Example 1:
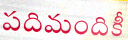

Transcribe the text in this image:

పదిమందికీ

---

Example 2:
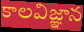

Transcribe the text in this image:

కాలవిజ్ఞాన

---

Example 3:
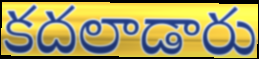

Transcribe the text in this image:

కదలాడారు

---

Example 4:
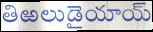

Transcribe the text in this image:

తిఱలుడైయాయ్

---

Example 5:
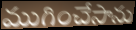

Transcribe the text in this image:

ముగించేసాను